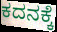
ಕದನಕ್ಕೆ